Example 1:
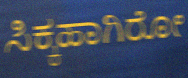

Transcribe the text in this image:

ಸಿಕ್ಕಹಾಗಿರೋ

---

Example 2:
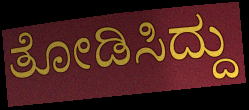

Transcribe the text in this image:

ತೋಡಿಸಿದ್ದು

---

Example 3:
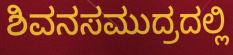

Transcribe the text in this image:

ಶಿವನಸಮುದ್ರದಲ್ಲಿ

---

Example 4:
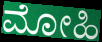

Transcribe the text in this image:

ಮೋಹಿ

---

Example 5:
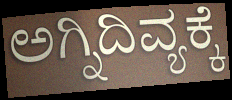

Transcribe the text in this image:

ಅಗ್ನಿದಿವ್ಯಕ್ಕೆ